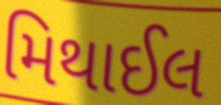
મિથાઈલ